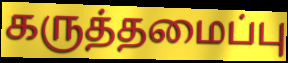
கருத்தமைப்பு